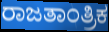
ರಾಜತಾಂತ್ರಿಕ